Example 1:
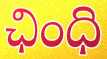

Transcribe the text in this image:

ఛింధి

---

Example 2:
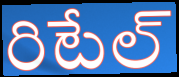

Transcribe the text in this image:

రిటేల్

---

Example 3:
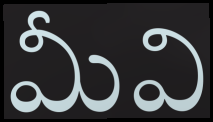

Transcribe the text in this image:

మీవి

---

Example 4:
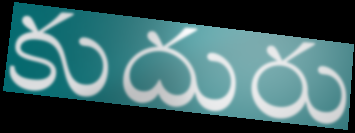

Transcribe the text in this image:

కుదురు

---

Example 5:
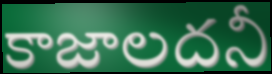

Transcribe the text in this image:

కాజాలదనీ